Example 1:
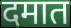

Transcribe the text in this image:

दमात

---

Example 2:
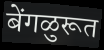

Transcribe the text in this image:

बेंगळुरूत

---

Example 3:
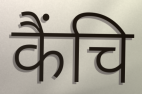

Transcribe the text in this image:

कैंचि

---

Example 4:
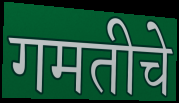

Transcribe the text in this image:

गमतीचे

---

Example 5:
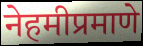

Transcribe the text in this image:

नेहमीप्रमाणे